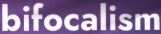
bifocalism